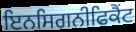
ਇਨਸਿਗਨੀਫਿਕੈਂਟ